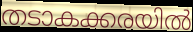
തടാകക്കരയിൽ